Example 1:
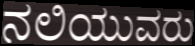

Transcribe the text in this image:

ನಲಿಯುವರು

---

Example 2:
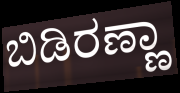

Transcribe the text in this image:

ಬಿಡಿರಣ್ಣಾ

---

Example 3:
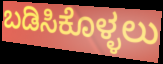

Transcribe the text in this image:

ಬಡಿಸಿಕೊಳ್ಳಲು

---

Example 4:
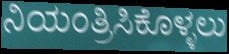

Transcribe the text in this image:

ನಿಯಂತ್ರಿಸಿಕೊಳ್ಳಲು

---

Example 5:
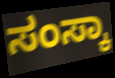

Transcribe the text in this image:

ಸಂಸ್ಕಾ